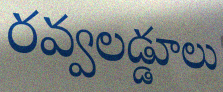
రవ్వలడ్డూలు